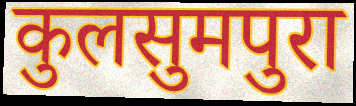
कुलसुमपुरा